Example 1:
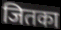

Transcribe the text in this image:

जितका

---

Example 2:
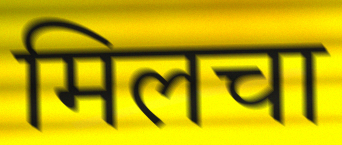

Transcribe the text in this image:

मिलचा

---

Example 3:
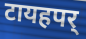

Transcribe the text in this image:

टायहपर्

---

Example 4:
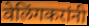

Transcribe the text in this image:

वेलिंगकरांनी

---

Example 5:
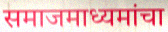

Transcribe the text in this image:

समाजमाध्यमांचा